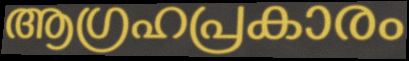
ആഗ്രഹപ്രകാരം